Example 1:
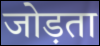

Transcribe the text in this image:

जोड़ता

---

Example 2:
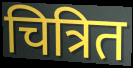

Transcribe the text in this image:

चित्रित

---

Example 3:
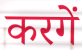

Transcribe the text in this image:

करगें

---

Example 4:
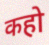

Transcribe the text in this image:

कहो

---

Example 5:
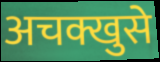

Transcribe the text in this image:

अचक्खुसे